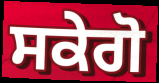
ਸਕੇਗੋ